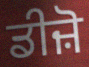
ਡੀਜ਼ੋ